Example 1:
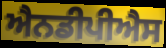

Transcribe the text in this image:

ਐਨਡੀਪੀਐਸ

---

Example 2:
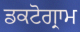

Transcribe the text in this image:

ਡਕਟੋਗ੍ਰਾਮ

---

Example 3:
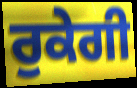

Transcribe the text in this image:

ਰੁਕੇਗੀ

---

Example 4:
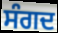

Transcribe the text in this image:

ਸੰਗਦ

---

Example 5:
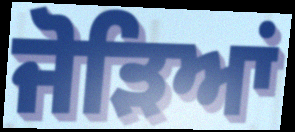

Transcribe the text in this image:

ਜੋੜਿਆਂ